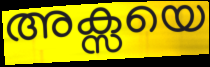
അക്സയെ